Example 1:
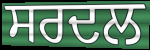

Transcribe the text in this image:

ਸਰਦਲ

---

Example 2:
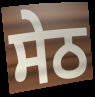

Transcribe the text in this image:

ਸੇਠ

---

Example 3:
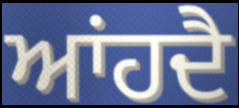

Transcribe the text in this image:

ਆਂਹਦੈ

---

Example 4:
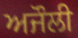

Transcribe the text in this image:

ਅਜੌਲੀ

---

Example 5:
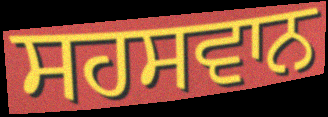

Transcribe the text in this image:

ਸਹਸਵਾਨ